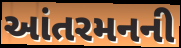
આંતરમનની